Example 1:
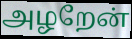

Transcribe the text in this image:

அழறேன்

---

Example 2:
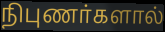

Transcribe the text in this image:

நிபுணர்களால்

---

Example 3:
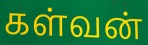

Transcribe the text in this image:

கள்வன்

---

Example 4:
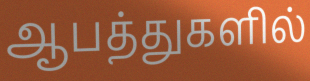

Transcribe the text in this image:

ஆபத்துகளில்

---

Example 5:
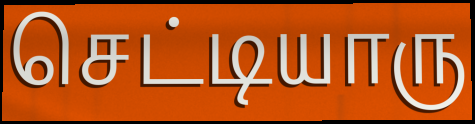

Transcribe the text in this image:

செட்டியாரு